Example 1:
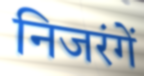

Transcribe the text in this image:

निजरंगें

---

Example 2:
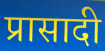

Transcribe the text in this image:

प्रासादी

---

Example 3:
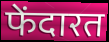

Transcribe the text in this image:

फेंदारत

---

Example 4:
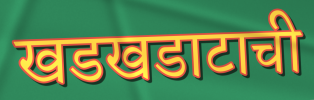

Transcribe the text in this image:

खडखडाटाची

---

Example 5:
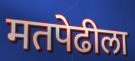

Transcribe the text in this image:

मतपेढीला